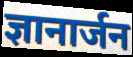
ज्ञानार्जन